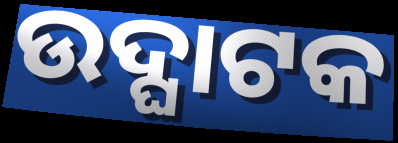
ଉଦ୍ଘାଟକ